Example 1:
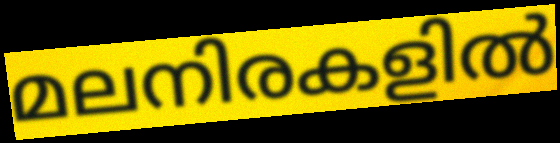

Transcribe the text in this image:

മലനിരകളിൽ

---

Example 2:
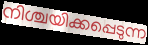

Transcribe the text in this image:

നിശ്ചയിക്കപ്പെടുന്ന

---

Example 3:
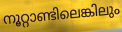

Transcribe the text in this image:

നൂറ്റാണ്ടിലെങ്കിലും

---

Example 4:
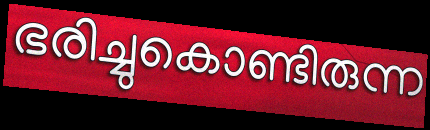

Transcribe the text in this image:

ഭരിച്ചുകൊണ്ടിരുന്ന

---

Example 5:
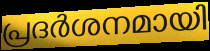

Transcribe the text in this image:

പ്രദർശനമായി